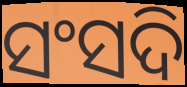
ସଂସଦି